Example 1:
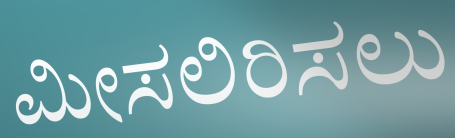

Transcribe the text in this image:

ಮೀಸಲಿರಿಸಲು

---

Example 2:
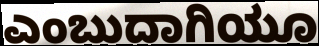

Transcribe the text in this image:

ಎಂಬುದಾಗಿಯೂ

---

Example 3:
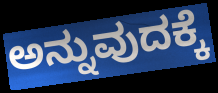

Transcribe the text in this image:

ಅನ್ನುವುದಕ್ಕೆ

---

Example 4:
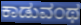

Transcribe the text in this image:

ಕಾಡುವಂಥ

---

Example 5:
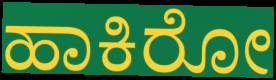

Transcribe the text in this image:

ಹಾಕಿರೋ